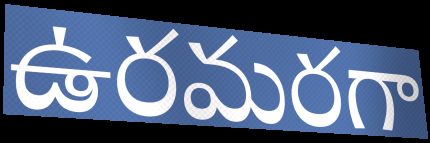
ఉరమరగా